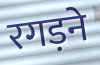
रगड़ने